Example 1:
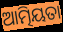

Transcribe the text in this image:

ଆତ୍ମିୟତା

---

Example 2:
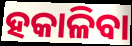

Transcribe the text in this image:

ହକାଳିବା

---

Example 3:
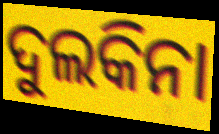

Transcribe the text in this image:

ଦୁଲକିନା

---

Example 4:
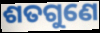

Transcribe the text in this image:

ଶତଗୁଣେ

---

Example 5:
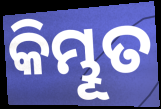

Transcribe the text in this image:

କିମ୍ଭୂତ